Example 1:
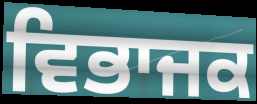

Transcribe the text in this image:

ਵਿਭਾਜਕ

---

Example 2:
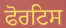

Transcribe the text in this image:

ਫੋਰਟਿਸ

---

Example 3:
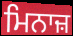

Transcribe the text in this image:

ਮਿਨਾਜ਼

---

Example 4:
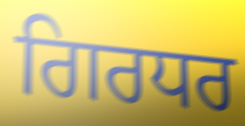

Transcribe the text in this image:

ਗਿਰਧਰ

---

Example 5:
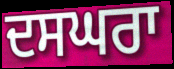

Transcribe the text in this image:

ਦਸਘਰਾ